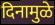
दिनामुळे